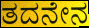
ತದನೇನ